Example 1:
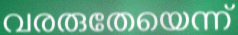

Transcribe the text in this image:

വരരുതേയെന്ന്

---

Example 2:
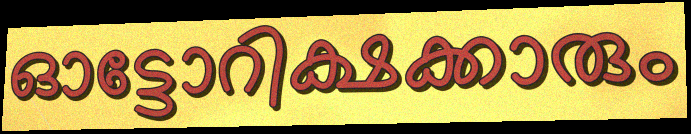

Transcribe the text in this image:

ഓട്ടോറിക്ഷക്കാരും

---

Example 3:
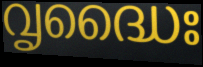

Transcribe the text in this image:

വൃദ്ധൈഃ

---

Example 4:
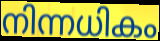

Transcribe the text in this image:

നിന്നധികം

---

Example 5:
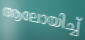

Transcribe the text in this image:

ആലോയിച്ച്